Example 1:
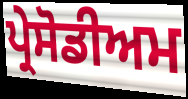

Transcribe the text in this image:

ਪ੍ਰੇਸੋਡੀਅਮ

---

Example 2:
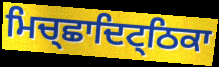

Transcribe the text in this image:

ਮਿਚ੍ਛਾਦਿਟ੍ਠਿਕਾ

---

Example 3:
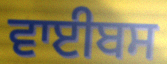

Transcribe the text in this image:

ਵਾਈਬਸ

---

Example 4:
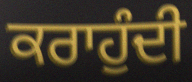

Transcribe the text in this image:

ਕਰਾਹੁੰਦੀ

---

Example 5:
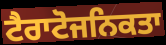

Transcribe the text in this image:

ਟੈਰਾਟੋਜਨਿਕਤਾ